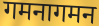
गमनागमन